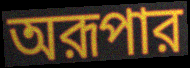
অরূপার